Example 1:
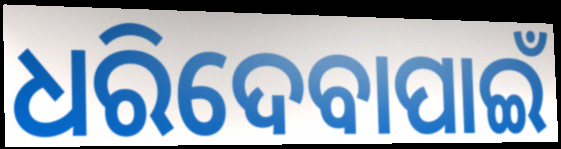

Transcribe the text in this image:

ଧରିଦେବାପାଇଁ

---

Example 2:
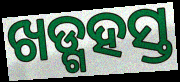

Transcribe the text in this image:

ଖଡ୍ଗହସ୍ତ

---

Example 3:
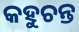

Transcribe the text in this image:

କହୁଚନ୍ତ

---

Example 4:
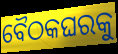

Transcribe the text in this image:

ବୈଠକଘରକୁ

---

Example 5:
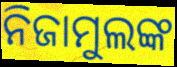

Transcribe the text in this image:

ନିଜାମୁଲଙ୍କ